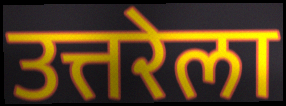
उत्तरेला